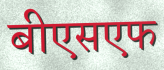
बीएसएफ